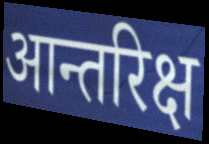
आन्तरिक्ष